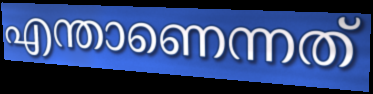
എന്താണെന്നത്